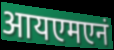
आयएमएनं